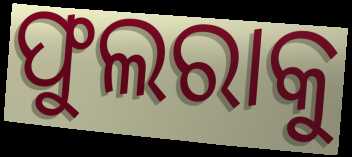
ଫୁଲରାକୁ